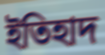
ইতিহাদ